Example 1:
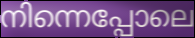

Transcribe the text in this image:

നിന്നെപ്പോലെ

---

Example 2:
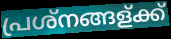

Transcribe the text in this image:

പ്രശ്നങ്ങള്ക്ക്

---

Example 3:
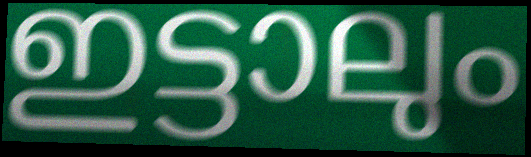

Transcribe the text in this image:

ഇട്ടാലും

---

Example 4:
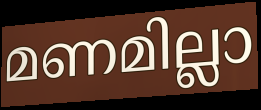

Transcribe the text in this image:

മണമില്ലാ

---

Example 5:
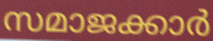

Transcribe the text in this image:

സമാജക്കാർ